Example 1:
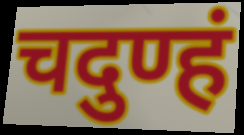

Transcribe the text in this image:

चदुण्हं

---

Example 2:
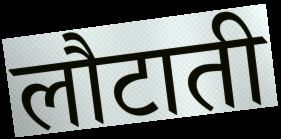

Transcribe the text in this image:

लौटाती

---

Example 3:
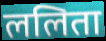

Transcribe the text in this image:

ललिता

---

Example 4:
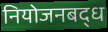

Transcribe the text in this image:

नियोजनबद्ध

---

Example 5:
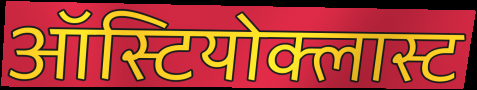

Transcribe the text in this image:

ऑस्टियोक्लास्ट